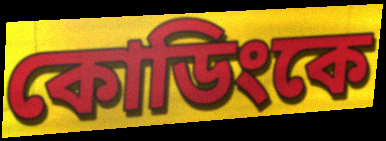
কোডিংকে